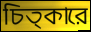
চিত্কারে